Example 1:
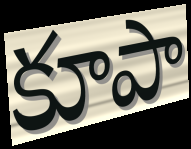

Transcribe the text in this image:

కూపా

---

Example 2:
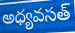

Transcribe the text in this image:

అధ్యవసత్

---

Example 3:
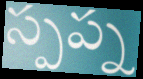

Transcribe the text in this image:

స్పప్న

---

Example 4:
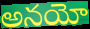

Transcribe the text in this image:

అనయో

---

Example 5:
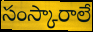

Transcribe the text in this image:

సంస్కారాలే